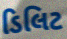
ડિલિટ